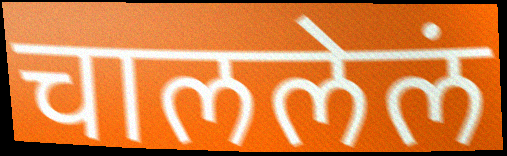
चाललेलं